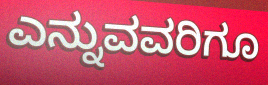
ಎನ್ನುವವರಿಗೂ